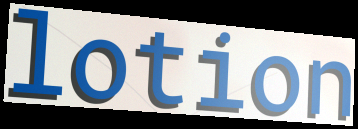
lotion